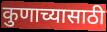
कुणाच्यासाठी